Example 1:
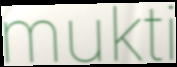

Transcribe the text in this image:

mukti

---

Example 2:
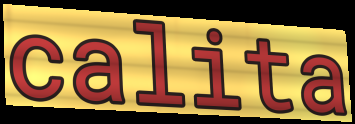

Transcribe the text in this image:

calita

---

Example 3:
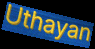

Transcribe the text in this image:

Uthayan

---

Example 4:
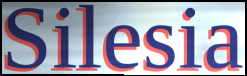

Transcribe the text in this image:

Silesia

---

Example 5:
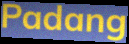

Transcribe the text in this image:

Padang